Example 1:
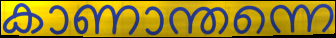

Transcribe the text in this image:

കാണാന്തന്നെ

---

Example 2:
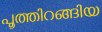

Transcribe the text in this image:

പൂത്തിറങ്ങിയ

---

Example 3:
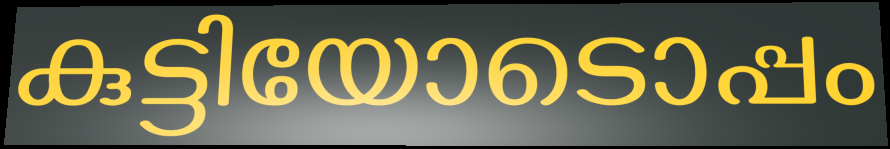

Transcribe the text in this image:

കുട്ടിയോടൊപ്പം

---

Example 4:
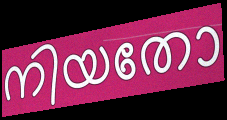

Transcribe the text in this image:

നിയതോ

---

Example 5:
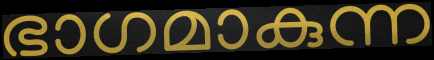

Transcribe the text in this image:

ഭാഗമാകുന്ന